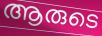
ആരുടെ